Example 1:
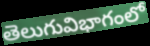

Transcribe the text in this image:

తెలుగువిభాగంలో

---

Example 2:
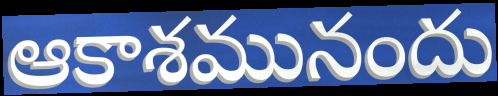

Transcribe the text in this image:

ఆకాశమునందు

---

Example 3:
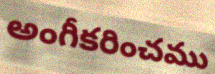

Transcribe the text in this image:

అంగీకరించము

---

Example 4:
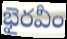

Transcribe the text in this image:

భైరవీం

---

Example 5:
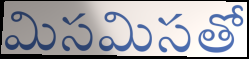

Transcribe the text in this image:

మిసమిసతో